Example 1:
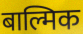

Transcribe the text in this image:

बाल्मिक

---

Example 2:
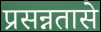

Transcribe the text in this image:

प्रसन्नतासे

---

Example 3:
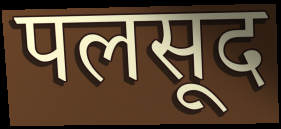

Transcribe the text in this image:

पलसूद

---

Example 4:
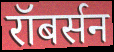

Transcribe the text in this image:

रॉबर्सन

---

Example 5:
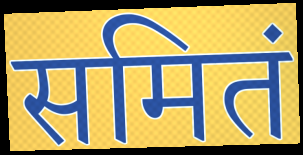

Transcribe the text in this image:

समितं